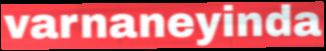
varnaneyinda